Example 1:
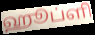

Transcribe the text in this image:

ஹூப்ளி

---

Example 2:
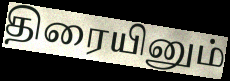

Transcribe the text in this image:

திரையினும்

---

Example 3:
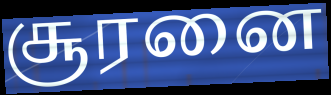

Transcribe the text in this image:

சூரனை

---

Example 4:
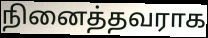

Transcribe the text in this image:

நினைத்தவராக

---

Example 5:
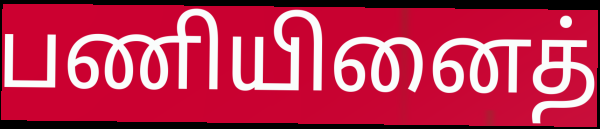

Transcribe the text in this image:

பணியினைத்